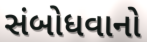
સંબોધવાનો